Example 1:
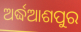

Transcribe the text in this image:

ଅର୍ଦ୍ଧଆଶପୁର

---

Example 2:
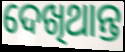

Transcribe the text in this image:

ଦେଖିଥାନ୍ତ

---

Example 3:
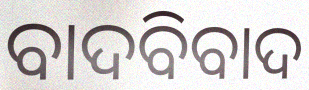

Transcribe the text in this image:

ବାଦବିବାଦ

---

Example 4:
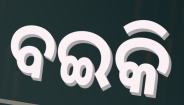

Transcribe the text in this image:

ବଇକି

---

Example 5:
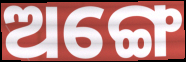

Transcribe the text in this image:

ଅଙ୍ଗେ